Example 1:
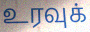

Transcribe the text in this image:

உரவுக்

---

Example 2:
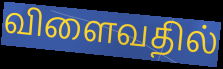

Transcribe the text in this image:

விளைவதில்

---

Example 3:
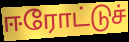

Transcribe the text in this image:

ஈரோட்டுச்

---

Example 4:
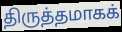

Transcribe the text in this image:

திருத்தமாகக்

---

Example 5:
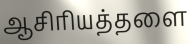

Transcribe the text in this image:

ஆசிரியத்தளை